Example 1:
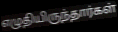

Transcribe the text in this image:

எழுதியிருந்தார்கள்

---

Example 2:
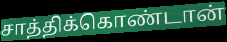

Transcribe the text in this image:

சாத்திக்கொண்டான்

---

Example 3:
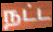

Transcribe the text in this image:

நட்ட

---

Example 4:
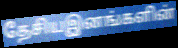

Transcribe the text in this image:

தேசியஇனங்களின்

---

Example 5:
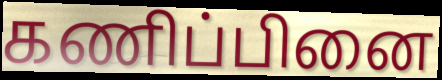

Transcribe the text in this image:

கணிப்பினை